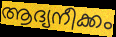
ആദ്യനീക്കം